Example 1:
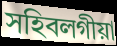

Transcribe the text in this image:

সহিবলগীয়া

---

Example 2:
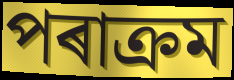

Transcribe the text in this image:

পৰাক্ৰম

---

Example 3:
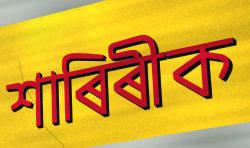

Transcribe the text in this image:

শাৰিৰীক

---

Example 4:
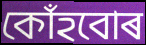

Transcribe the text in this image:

কোঁহবোৰ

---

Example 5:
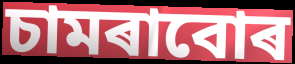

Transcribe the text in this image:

চামৰাবোৰ